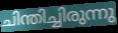
ചിന്തിച്ചിരുന്നു